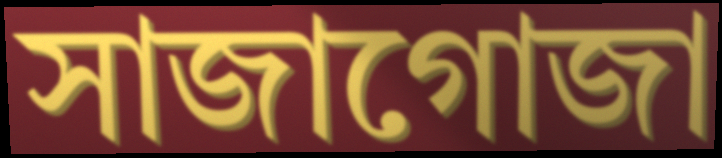
সাজাগোজা